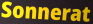
Sonnerat